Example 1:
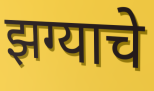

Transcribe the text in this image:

झग्याचे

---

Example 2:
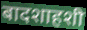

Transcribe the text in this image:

बादशाहशी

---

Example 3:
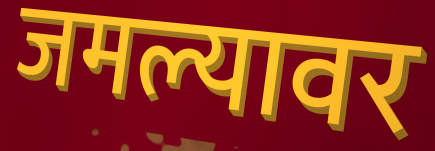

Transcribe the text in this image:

जमल्यावर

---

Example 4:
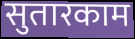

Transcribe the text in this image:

सुतारकाम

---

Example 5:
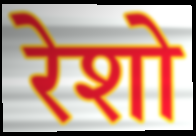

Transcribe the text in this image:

रेशो